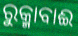
ରୁକ୍ମାବାଈ